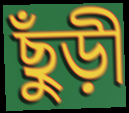
ছুঁড়ী